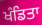
ਖੰਡਿਤਾ